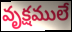
వృక్షములే